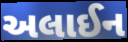
અલાઈન